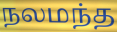
நலமந்த